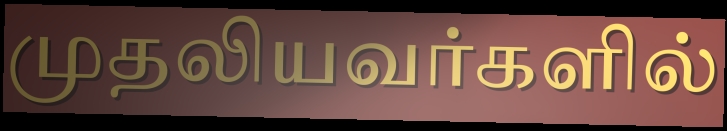
முதலியவர்களில்